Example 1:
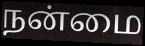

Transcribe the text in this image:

நன்மை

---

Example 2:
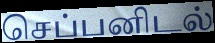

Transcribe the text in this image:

செப்பனிடல்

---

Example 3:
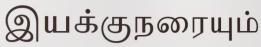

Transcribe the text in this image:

இயக்குநரையும்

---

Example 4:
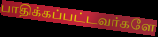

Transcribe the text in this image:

பாதிக்கப்பட்டவர்களே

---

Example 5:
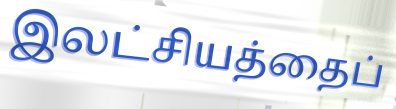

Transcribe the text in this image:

இலட்சியத்தைப்